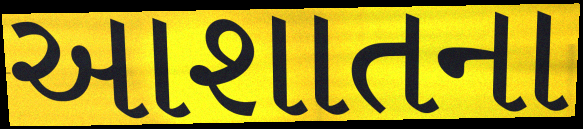
આશાતના